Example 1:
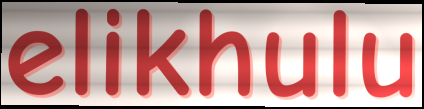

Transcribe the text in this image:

elikhulu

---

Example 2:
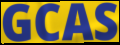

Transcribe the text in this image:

GCAS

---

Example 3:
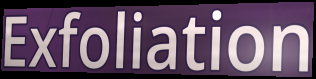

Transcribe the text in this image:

Exfoliation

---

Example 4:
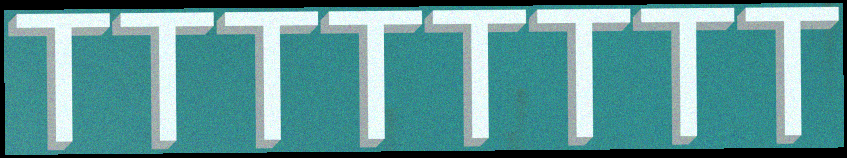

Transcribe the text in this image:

TTTTTTTT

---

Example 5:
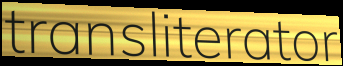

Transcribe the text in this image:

transliterator